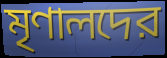
মৃণালদের